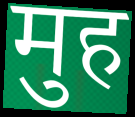
मुह